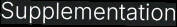
Supplementation